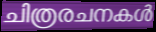
ചിത്രരചനകൾ